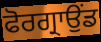
ਫੋਰਗ੍ਰਾਉਂਡ